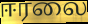
ஈரலை